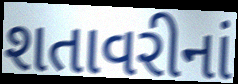
શતાવરીનાં